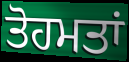
ਤੋਹਮਤਾਂ